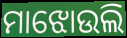
ମାଝୋଉଲି